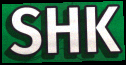
SHK